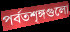
পর্বতশৃঙ্গগুলো